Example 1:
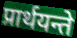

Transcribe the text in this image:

प्रार्थयन्ते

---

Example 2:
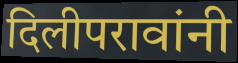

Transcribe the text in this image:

दिलीपरावांनी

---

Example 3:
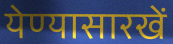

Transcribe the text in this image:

येण्यासारखें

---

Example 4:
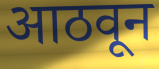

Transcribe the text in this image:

आठवून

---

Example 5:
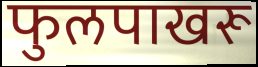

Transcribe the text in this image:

फुलपाखरू